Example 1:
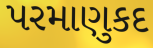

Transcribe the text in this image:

પરમાણુકદ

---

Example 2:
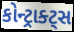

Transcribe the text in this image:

કોન્ટ્રાક્ટ્સ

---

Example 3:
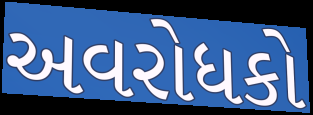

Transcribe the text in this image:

અવરોધકો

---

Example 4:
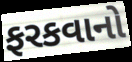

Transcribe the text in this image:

ફરકવાનો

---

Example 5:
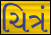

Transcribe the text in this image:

ચિત્રં